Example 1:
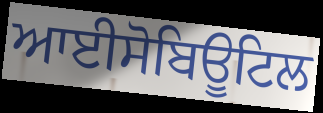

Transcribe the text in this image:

ਆਈਸੋਬਿਊਟਿਲ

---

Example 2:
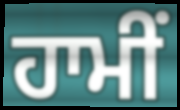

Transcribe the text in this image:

ਹਾਮੀਂ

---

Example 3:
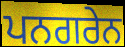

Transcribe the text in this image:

ਪਨਗਰੇਨ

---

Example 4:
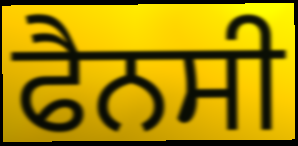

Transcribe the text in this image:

ਫੈਨਸੀ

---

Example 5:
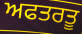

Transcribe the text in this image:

ਅਫਤਰਤੂ